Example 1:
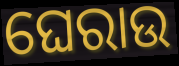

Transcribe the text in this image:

ଘେରାଉ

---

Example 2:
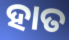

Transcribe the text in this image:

ହାତ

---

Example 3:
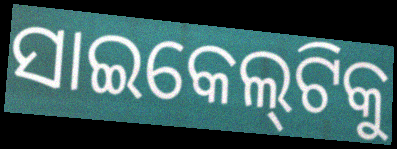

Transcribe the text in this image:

ସାଇକେଲ୍‌ଟିକୁ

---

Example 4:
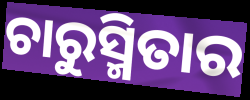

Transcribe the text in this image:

ଚାରୁସ୍ମିତାର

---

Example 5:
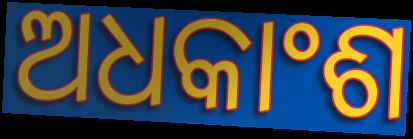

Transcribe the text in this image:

ଅଧକାଂଶ